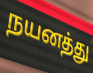
நயனத்து